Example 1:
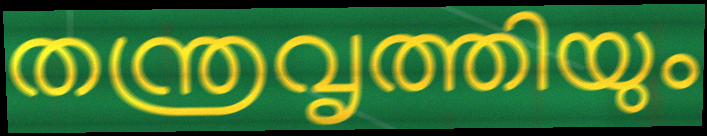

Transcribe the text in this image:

തന്ത്രവൃത്തിയും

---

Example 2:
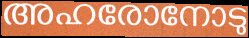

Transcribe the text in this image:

അഹരോനോടു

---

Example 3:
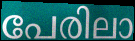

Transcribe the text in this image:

പേരിലാ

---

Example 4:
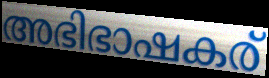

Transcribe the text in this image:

അഭിഭാഷകര്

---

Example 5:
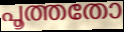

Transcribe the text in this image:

പൂത്തതോ